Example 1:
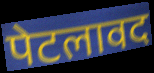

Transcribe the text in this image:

पेटलावद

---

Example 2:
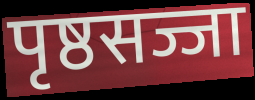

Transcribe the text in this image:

पृष्ठसज्जा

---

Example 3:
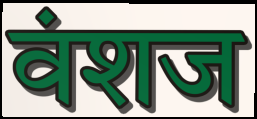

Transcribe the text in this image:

वंशज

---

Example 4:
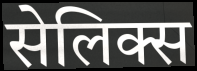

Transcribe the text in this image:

सेलिक्स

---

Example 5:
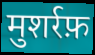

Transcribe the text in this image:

मुशर्रफ़